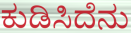
ಕುಡಿಸಿದೆನು